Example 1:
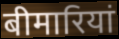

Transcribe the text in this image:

बीमारियां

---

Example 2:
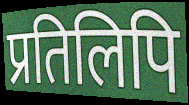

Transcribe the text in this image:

प्रतिलिपि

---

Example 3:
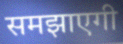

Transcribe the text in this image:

समझाएगी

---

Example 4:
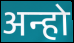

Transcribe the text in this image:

अन्हो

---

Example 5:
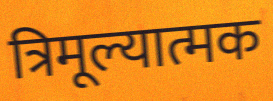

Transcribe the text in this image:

त्रिमूल्यात्मक